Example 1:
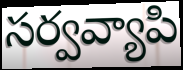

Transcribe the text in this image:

సర్వవ్యాపి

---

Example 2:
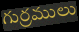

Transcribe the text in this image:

గుర్రములు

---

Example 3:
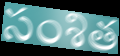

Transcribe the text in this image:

సంశిత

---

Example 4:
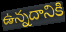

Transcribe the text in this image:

ఉన్నదానికి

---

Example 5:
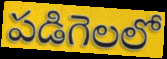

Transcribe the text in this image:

పడిగెలలో